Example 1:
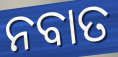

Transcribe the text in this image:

ନବାତ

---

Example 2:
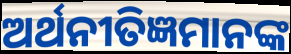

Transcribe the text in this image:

ଅର୍ଥନୀତିଜ୍ଞମାନଙ୍କ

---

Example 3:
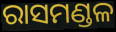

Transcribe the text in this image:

ରାସମଣ୍ଡଳ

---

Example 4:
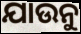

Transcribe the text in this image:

ଯାଉନୁ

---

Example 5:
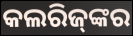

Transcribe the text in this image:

କଲରିଜ୍‌ଙ୍କର